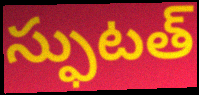
స్ఫుటత్